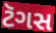
ટૅગસ